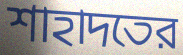
শাহাদতের